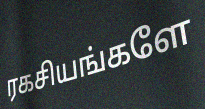
ரகசியங்களே